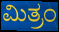
ಮಿತ್ರಂ